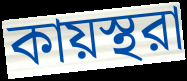
কায়স্থরা